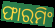
ଫାରମିଂ